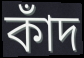
কাঁদ